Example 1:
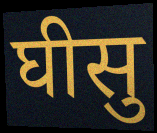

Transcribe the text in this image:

घीसु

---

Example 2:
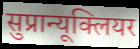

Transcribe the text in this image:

सुप्रान्यूक्लियर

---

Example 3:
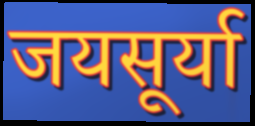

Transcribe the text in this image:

जयसूर्या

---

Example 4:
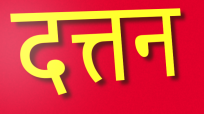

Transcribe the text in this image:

दत्तन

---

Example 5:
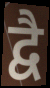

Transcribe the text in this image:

द्वै